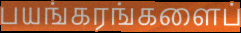
பயங்கரங்களைப்